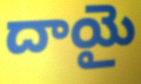
దాయై